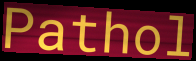
Pathol